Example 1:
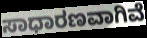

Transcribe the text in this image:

ಸಾಧಾರಣವಾಗಿವೆ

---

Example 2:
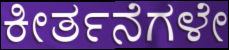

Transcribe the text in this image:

ಕೀರ್ತನೆಗಳೇ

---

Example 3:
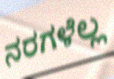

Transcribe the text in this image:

ನರಗಳೆಲ್ಲ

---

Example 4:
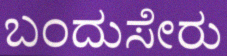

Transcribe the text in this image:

ಬಂದುಸೇರು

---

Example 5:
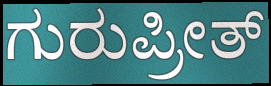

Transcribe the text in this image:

ಗುರುಪ್ರೀತ್